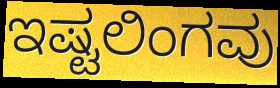
ಇಷ್ಟಲಿಂಗವು